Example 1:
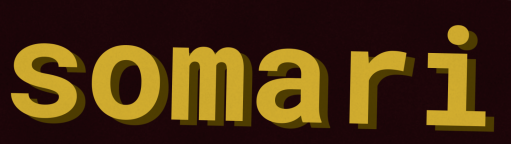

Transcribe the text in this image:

somari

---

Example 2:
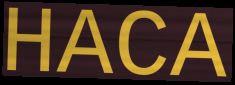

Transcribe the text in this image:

HACA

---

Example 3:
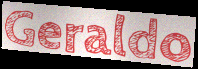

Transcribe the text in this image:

Geraldo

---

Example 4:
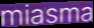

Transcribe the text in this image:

miasma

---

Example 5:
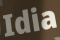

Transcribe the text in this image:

Idia